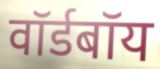
वॉर्डबॉय